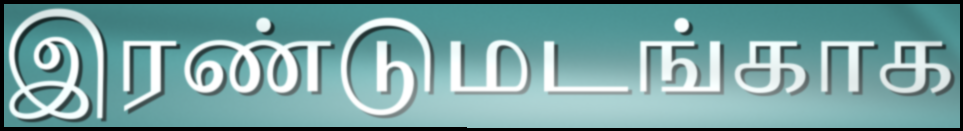
இரண்டுமடங்காக